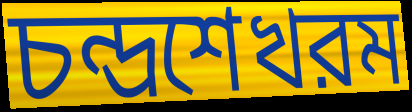
চন্দ্রশেখরম